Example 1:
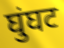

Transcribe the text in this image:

घुंघट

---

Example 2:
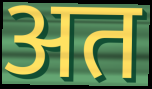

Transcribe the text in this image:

अत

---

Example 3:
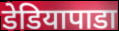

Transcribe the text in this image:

डेडियापाडा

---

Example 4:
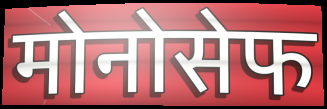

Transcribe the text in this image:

मोनोसेफ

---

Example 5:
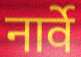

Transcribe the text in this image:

नार्वे